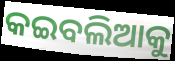
କଇବଲିଆକୁ